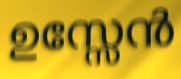
ഉസ്സേൻ